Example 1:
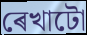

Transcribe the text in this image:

ৰেখাটো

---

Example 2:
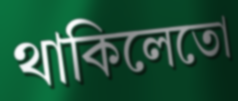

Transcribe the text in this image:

থাকিলেতো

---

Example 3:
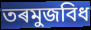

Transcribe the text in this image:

তৰমুজবিধ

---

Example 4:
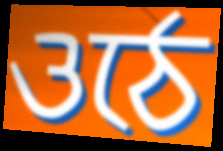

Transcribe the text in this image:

ওঠে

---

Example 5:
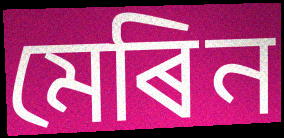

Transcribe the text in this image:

মেৰিন